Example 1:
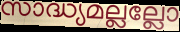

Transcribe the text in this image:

സാദ്ധ്യമല്ലല്ലോ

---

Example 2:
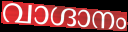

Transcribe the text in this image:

വാഗ്ദാനം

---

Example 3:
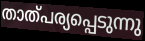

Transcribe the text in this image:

താത്പര്യപ്പെടുന്നു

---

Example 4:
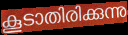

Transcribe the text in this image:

കൂടാതിരിക്കുന്നു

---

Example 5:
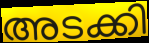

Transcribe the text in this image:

അടക്കി